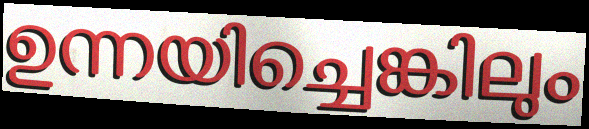
ഉന്നയിച്ചെങ്കിലും